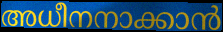
അധീനനാക്കാൻ